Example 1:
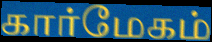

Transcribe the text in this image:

கார்மேகம்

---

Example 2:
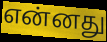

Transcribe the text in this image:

என்னது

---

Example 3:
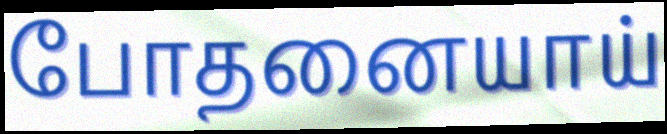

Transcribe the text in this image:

போதனையாய்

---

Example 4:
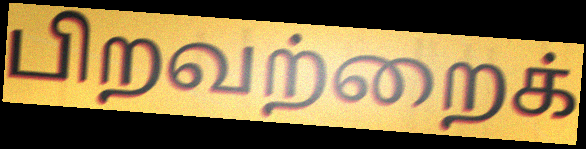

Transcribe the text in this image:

பிறவற்றைக்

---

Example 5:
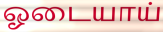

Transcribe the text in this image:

ஓடையாய்